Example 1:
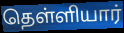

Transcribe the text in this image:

தெள்ளியார்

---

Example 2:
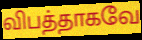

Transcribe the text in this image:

விபத்தாகவே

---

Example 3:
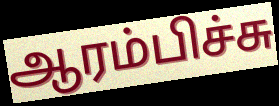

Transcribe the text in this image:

ஆரம்பிச்சு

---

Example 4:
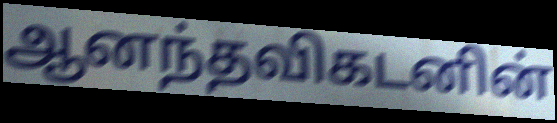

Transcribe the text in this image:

ஆனந்தவிகடனின்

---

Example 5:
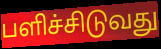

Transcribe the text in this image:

பளிச்சிடுவது